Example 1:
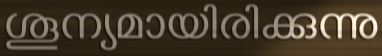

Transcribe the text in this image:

ശൂന്യമായിരിക്കുന്നു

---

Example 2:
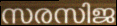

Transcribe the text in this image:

സരസിജ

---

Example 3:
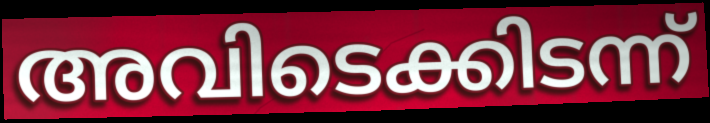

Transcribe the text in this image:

അവിടെക്കിടന്ന്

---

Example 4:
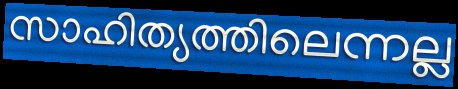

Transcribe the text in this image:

സാഹിത്യത്തിലെന്നല്ല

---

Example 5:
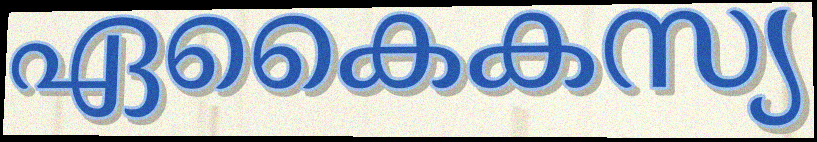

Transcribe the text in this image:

ഏകൈകസ്യ